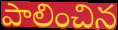
పాలించిన